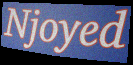
Njoyed